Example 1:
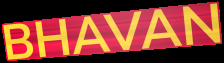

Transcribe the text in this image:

BHAVAN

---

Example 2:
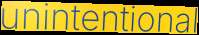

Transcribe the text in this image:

unintentional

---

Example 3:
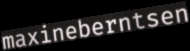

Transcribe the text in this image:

maxineberntsen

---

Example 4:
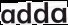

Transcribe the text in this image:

adda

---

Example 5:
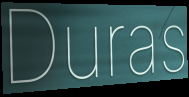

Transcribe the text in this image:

Duras